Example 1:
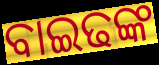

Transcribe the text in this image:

ବାଇଢଙ୍କ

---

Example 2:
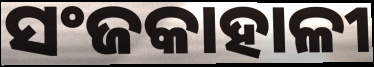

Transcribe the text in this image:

ସଂଜକାହାଳୀ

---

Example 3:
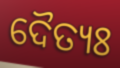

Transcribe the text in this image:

ଦୈତ୍ୟଃ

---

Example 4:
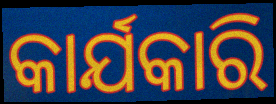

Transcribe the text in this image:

କାର୍ଯକାରି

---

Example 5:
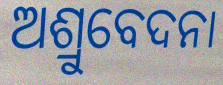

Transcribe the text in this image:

ଅଶ୍ରୁବେଦନା